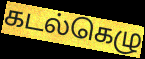
கடல்கெழு